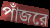
পাঁজরে